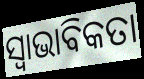
ସ୍ଵାଭାବିକତା